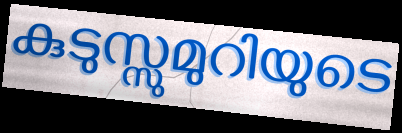
കുടുസ്സുമുറിയുടെ